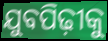
ଯୁବପିଢ଼ୀକୁ